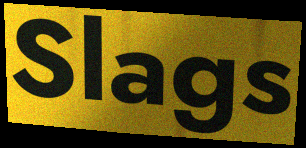
Slags